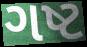
ગષ્ટ